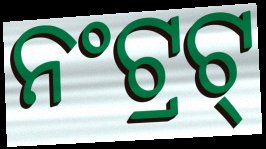
ନଂଟ୍ରଟ୍